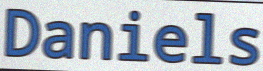
Daniels